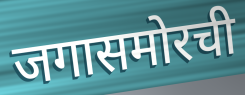
जगासमोरची